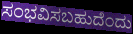
ಸಂಭವಿಸಬಹುದೆಂದು